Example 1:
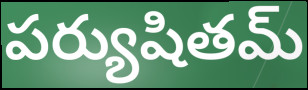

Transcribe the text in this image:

పర్యుషితమ్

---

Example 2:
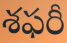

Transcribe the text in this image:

శఫరీ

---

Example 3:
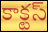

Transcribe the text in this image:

కాక్టస్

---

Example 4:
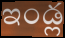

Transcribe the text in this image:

ఇండ్ల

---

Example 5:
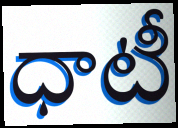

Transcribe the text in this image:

ధాటీ